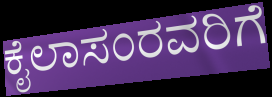
ಕೈಲಾಸಂರವರಿಗೆ